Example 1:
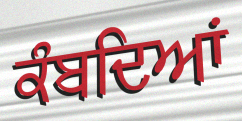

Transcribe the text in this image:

ਕੰਬਦਿਆਂ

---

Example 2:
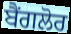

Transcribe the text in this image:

ਬੈਂਗਲੋਰ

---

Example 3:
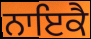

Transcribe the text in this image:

ਨਾਇਕੈ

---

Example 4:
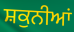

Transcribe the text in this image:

ਸ਼ਕੁਨੀਆਂ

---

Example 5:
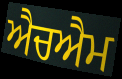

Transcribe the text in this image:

ਐਚਐਮ